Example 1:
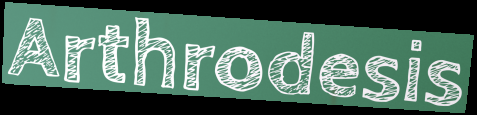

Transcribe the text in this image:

Arthrodesis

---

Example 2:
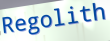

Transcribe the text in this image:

Regolith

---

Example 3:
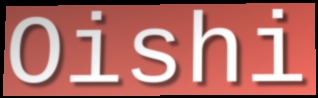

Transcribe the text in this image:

Oishi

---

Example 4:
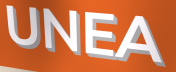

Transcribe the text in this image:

UNEA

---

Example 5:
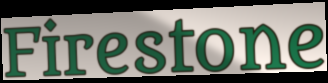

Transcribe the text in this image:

Firestone